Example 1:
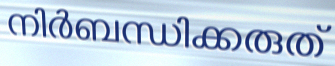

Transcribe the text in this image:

നിർബന്ധിക്കരുത്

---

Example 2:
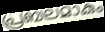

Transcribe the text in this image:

പ്രബലമാകും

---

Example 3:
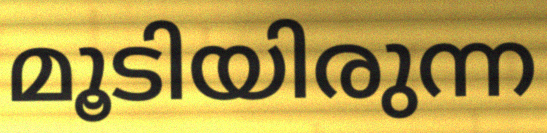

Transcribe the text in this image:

മൂടിയിരുന്ന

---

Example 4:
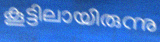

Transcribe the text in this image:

കൂട്ടിലായിരുന്നു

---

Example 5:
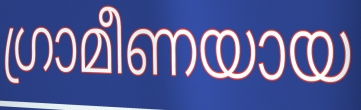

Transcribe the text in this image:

ഗ്രാമീണയായ